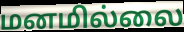
மனமில்லை